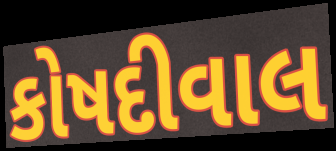
કોષદીવાલ